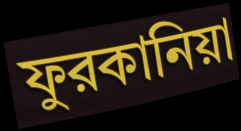
ফুরকানিয়া